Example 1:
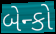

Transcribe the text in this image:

બેન્કો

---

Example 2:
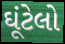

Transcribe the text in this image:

ઘૂંટેલો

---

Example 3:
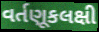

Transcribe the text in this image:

વર્તણૂકલક્ષી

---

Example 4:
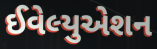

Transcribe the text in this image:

ઈવેલ્યુએશન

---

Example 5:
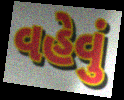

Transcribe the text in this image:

વહેવું